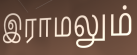
இராமலும்